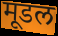
मूडल